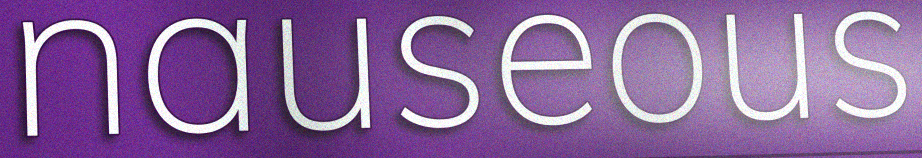
nauseous